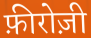
फ़ीरोज़ी